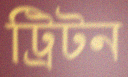
ট্রিটন